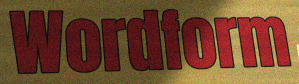
Wordform